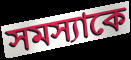
সমস্যাকে